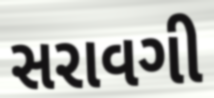
સરાવગી